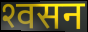
श्वसन